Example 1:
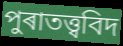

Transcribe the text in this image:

পুৰাতত্ত্ববিদ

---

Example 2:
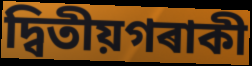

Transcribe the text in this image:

দ্বিতীয়গৰাকী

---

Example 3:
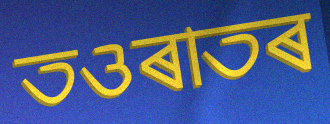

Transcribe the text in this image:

তওৰাতৰ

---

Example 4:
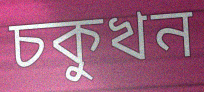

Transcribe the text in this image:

চকুখন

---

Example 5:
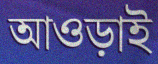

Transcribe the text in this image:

আওড়াই